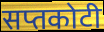
सप्तकोटी